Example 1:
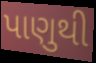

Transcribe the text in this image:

પાણુથી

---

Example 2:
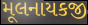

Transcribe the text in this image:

મૂલનાયકજી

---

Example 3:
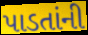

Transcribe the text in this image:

પાડતાંની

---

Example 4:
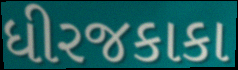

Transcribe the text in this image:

ધીરજકાકા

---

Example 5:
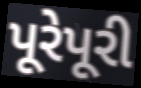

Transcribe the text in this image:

પૂરેપૂરી